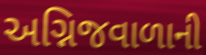
અગ્નિજવાળાની